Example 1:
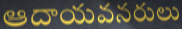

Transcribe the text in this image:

ఆదాయవనరులు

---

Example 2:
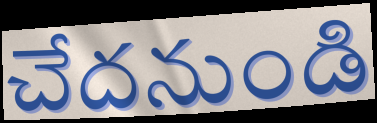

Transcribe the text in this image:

చేదనుండి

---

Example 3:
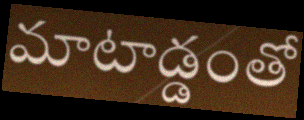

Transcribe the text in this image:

మాటాడ్డంతో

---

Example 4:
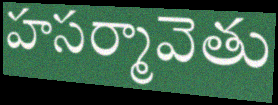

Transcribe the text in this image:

హసర్మావెతు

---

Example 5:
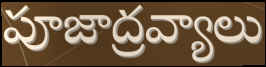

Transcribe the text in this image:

పూజాద్రవ్యాలు